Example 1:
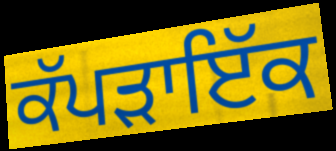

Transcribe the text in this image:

ਕੱਪੜਾਇੱਕ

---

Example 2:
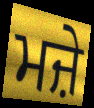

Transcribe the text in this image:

ਮਜ਼ੇ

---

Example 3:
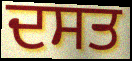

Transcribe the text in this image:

ਦਸਤ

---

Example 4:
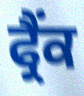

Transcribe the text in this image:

ਫ੍ਰੈਂਕ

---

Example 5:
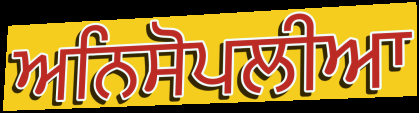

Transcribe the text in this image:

ਅਨਿਸੋਪਲੀਆ